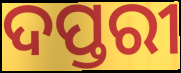
ଦପ୍ତରୀ